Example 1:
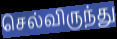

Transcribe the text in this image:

செல்விருந்து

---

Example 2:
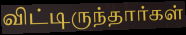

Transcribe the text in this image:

விட்டிருந்தார்கள்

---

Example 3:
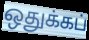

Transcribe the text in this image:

ஒதுக்கப்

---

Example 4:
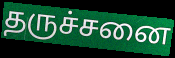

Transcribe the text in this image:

தருச்சனை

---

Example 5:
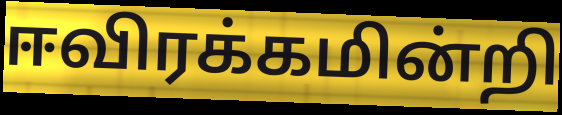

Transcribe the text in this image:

ஈவிரக்கமின்றி